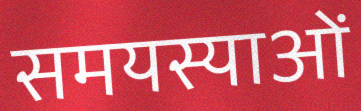
समयस्याओं